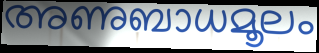
അണുബാധമൂലം